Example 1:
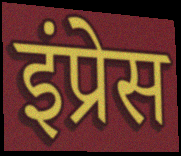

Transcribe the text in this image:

इंप्रेस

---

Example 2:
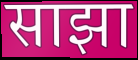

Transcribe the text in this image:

साझा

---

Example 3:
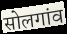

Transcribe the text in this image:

सोलगांव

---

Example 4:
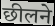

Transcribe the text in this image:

छीलने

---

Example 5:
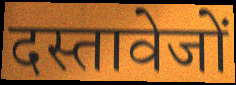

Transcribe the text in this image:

दस्तावेजों